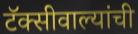
टॅक्सीवाल्यांची